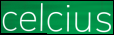
celcius